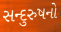
સન્દુરુષનો